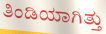
ತಿಂಡಿಯಾಗಿತ್ತು